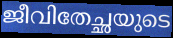
ജീവിതേച്ഛയുടെ